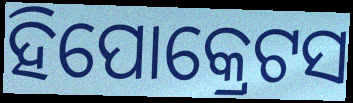
ହିପୋକ୍ରେଟସ